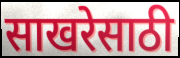
साखरेसाठी